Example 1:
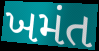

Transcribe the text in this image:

ખમંત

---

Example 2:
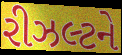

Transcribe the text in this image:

રીઝલ્ટને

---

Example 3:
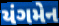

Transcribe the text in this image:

યંગમેન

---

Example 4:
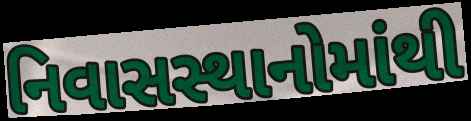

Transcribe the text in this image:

નિવાસસ્થાનોમાંથી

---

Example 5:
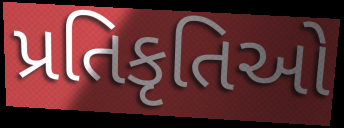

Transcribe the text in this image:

પ્રતિકૃતિઓ